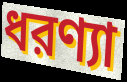
ধরণ্যা